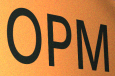
OPM